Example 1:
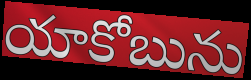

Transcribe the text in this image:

యాకోబును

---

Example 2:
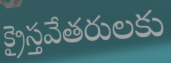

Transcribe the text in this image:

క్రైస్తవేతరులకు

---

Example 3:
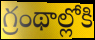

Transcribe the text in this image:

గ్రంథాల్లోకి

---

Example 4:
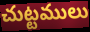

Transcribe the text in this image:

చుట్టములు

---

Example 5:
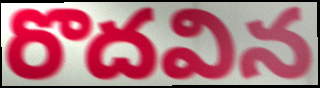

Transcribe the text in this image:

రొదవిన